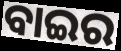
ବାଇର